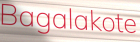
Bagalakote